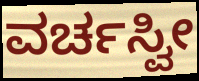
ವರ್ಚಸ್ವೀ